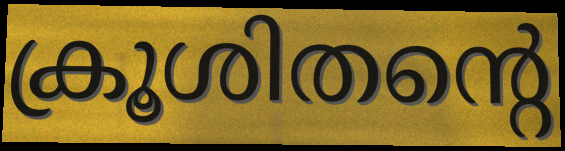
ക്രൂശിതന്റെ